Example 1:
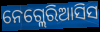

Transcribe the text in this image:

ନେଗ୍ଲେରିଆସିସ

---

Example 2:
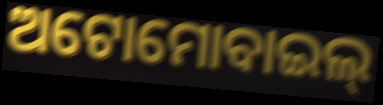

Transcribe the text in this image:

ଅଟୋମୋବାଇଲ୍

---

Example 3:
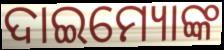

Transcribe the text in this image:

ଦାଇମ୍ଯୋଙ୍କ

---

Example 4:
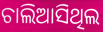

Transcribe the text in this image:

ଚାଲିଆସିଥିଲ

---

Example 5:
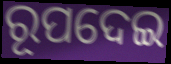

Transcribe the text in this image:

ରୂପଦେଇ